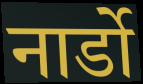
नार्डो